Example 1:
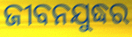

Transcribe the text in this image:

ଜୀବନଯୁଦ୍ଧର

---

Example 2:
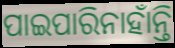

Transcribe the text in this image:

ପାଇପାରିନାହାଁନ୍ତି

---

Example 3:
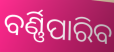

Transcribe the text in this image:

ବର୍ଣ୍ଣିପାରିବ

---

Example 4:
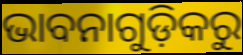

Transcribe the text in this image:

ଭାବନାଗୁଡ଼ିକରୁ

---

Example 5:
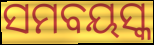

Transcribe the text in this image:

ସମବୟସ୍କ